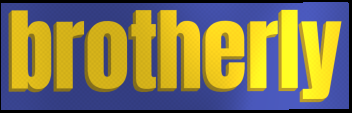
brotherly